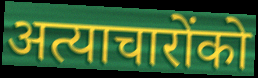
अत्याचारोंको